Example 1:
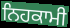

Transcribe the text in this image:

ਨਿਹਕਾਮੀ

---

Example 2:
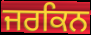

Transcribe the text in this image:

ਜਰਕਿਨ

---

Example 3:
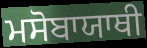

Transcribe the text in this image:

ਮਸੋਬਾਯਾਥੀ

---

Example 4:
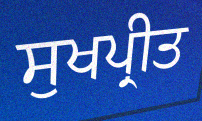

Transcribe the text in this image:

ਸੁਖਪ੍ਰੀਤ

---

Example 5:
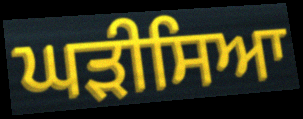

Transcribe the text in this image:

ਘੜੀਸਿਆ